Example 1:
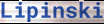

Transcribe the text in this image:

Lipinski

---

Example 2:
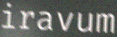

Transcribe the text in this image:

iravum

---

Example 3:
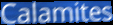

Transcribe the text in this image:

Calamites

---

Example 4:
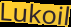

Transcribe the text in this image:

Lukoil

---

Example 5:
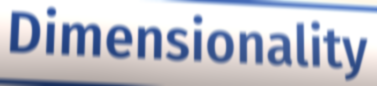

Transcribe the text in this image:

Dimensionality